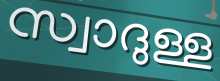
സ്വാദുള്ള